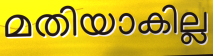
മതിയാകില്ല